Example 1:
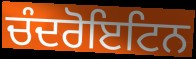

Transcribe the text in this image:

ਚੰਦਰੋਇਟਿਨ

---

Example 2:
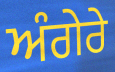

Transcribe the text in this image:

ਅੰਗੇਰੇ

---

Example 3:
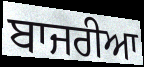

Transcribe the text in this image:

ਬਾਜਰੀਆ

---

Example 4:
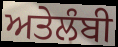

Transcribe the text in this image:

ਅਤੇਲੰਬੀ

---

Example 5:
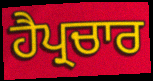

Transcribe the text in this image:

ਹੈਪ੍ਰਚਾਰ